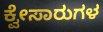
ಕ್ವೇಸಾರುಗಳ